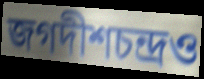
জগদীশচন্দ্রও